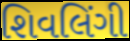
શિવલિંગી